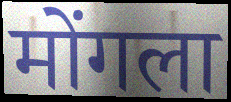
मोंगला